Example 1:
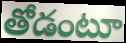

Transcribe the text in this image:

తోడంటూ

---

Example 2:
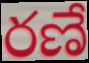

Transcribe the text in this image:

రణే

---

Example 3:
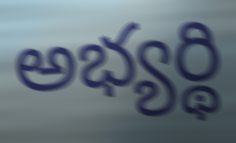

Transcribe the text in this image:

అభ్యర్థి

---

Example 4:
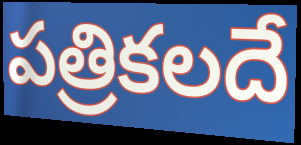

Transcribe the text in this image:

పత్రికలదే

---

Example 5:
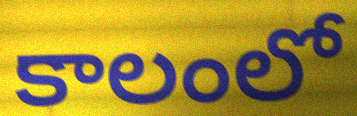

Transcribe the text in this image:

కాలంలో